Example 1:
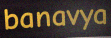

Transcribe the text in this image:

banavya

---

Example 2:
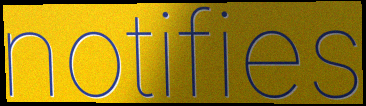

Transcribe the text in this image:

notifies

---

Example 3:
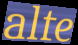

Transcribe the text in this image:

alte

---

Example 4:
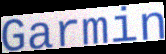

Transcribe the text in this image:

Garmin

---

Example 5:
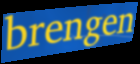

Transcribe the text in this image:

brengen